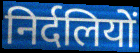
निर्दलियों